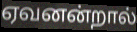
ஏவனன்றால்